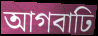
আগবাঢি